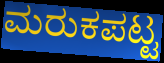
ಮರುಕಪಟ್ಟ